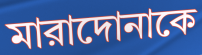
মারাদোনাকে